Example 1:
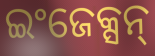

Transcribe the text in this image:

ଇଂଜେକ୍ସନ୍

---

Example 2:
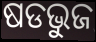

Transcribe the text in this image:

ଷଡଭୁଜ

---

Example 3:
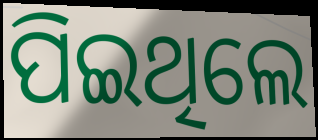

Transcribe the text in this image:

ପିଇଥିଲେ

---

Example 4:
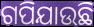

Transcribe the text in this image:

ଗପିଯାଉଛି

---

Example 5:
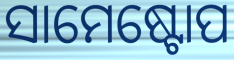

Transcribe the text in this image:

ସାମେଷ୍ଟୋପ